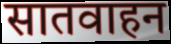
सातवाहन